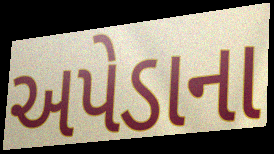
અપેડાના